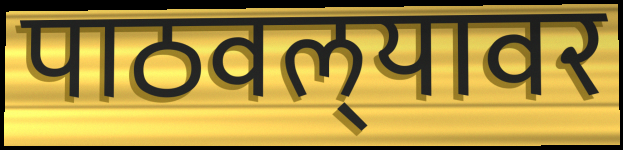
पाठवल्यावर